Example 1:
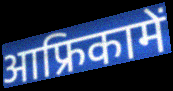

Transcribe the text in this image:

आफ्रिकामें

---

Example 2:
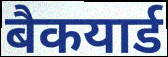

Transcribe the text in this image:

बैकयार्ड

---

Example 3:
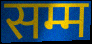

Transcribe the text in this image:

सम्म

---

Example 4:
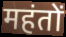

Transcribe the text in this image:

महंतों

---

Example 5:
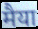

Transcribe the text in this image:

मैया